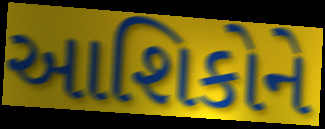
આશિકોને